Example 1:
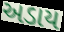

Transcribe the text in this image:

અડાય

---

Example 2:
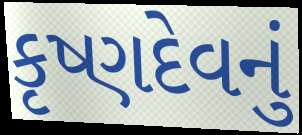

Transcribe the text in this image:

કૃષ્ણદેવનું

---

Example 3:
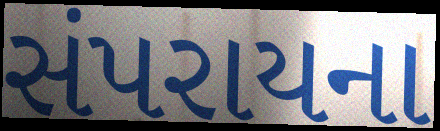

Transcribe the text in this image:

સંપરાયના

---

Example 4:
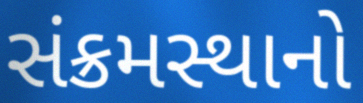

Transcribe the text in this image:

સંક્રમસ્થાનો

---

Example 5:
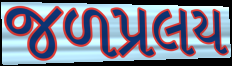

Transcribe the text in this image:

જળપ્રલય